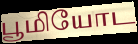
பூமியோட